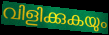
വിളിക്കുകയും